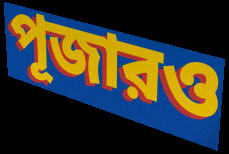
পূজারও